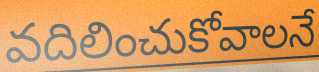
వదిలించుకోవాలనే